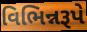
વિભિન્નરૂપે